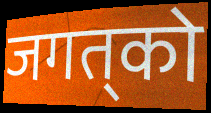
जगत्‌को